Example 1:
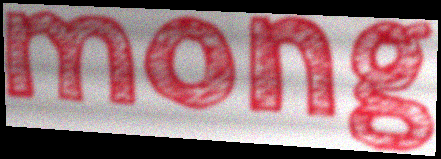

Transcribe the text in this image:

mong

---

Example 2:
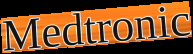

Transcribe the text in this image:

Medtronic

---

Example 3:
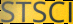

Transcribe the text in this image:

STSCI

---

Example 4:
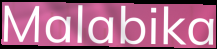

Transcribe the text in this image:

Malabika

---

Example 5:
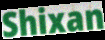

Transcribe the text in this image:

Shixan